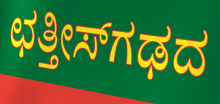
ಛತ್ತೀಸ್‌ಗಢದ